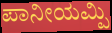
ಪಾನೀಯಮ್ಪಿ